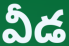
వీడ